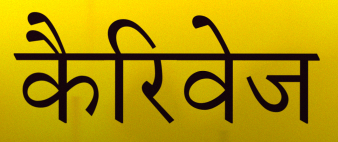
कैरिवेज